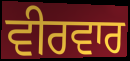
ਵੀਰਵਾਰ